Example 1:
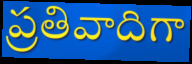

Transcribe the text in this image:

ప్రతివాదిగా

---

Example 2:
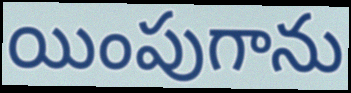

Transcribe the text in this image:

యింపుగాను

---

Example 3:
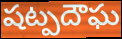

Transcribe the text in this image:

షట్పదౌఘ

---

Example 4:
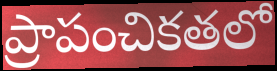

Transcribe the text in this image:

ప్రాపంచికతలో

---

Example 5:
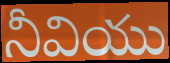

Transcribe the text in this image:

నీవియు